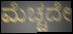
ಮೆಚ್ಚದೇ